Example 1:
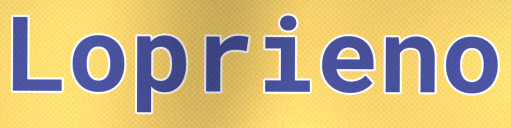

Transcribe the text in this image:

Loprieno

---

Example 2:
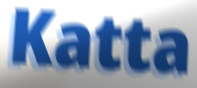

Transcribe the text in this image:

Katta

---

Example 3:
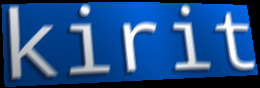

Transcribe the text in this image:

kirit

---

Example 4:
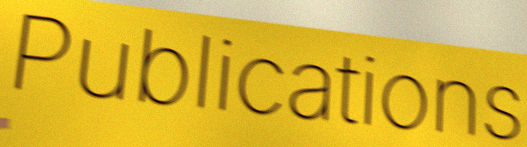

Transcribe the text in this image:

Publications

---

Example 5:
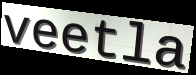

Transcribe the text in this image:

veetla